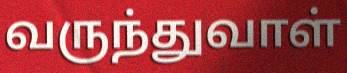
வருந்துவாள்